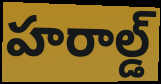
హరాల్డ్